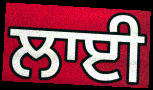
ਲਾਈ